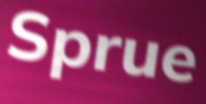
Sprue